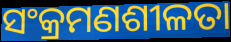
ସଂକ୍ରମଣଶୀଳତା